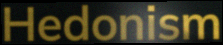
Hedonism